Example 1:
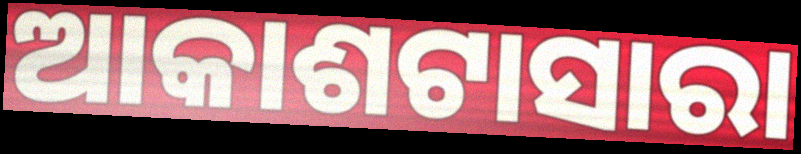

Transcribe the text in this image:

ଆକାଶଟାସାରା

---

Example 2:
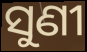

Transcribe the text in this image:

ସୁଣୀ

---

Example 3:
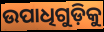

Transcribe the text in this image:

ଉପାଧିଗୁଡ଼ିକୁ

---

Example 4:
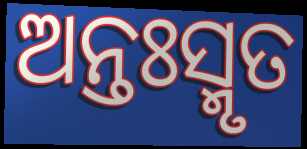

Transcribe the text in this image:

ଅନ୍ତଃସ୍ମୃତ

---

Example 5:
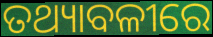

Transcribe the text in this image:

ତଥ୍ୟାବଳୀରେ